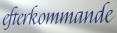
efterkommande